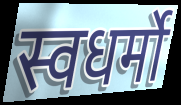
स्वधर्मो